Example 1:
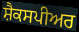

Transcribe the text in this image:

ਸ਼ੈਕਸਪੀਅਰ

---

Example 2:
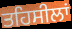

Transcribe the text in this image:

ਤਹਿਸੀਲਾਂ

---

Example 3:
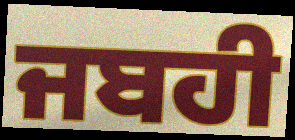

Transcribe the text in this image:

ਜਬਹੀ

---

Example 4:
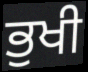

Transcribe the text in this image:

ਭੁਖੀ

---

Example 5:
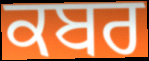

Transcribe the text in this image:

ਕਬਰ